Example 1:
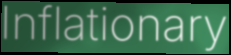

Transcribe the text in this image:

Inflationary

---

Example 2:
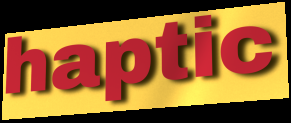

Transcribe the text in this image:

haptic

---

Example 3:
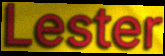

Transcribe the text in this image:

Lester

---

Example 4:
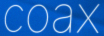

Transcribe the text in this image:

coax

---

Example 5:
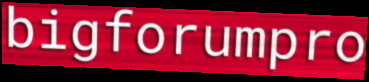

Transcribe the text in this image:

bigforumpro